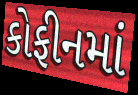
કોફીનમાં